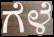
ಗೆಳೆ